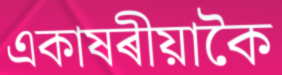
একাষৰীয়াকৈ